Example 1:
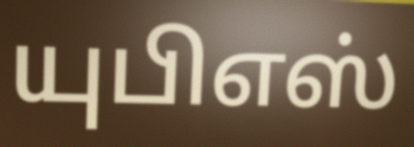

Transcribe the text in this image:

யுபிஎஸ்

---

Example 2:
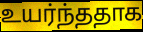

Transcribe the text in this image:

உயர்ந்ததாக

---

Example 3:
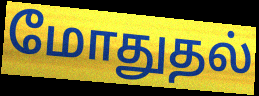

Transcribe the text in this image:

மோதுதல்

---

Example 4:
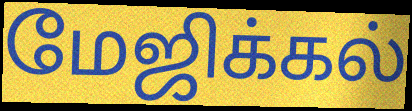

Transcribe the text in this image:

மேஜிக்கல்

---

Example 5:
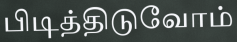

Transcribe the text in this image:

பிடித்திடுவோம்